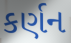
કર્ણન